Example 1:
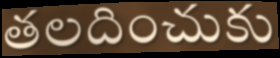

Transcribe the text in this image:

తలదించుకు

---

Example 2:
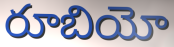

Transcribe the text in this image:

రూబియో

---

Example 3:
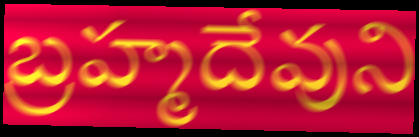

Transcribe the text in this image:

బ్రహ్మదేవుని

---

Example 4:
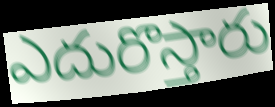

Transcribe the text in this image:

ఎదురొస్తారు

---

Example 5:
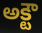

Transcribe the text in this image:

అక్టౌ